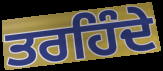
ਤਰਹਿੰਦੇ